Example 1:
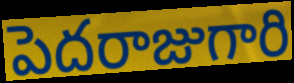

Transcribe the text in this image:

పెదరాజుగారి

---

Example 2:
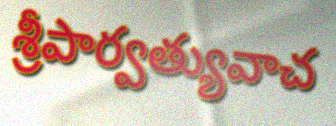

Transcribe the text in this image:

శ్రీపార్వత్యువాచ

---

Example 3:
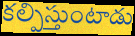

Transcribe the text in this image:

కల్పిస్తుంటాడు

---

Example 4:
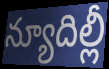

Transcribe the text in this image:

న్యూదిల్లీ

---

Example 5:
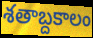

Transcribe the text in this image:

శతాబ్దకాలం